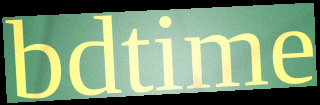
bdtime